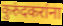
कुरुंदकरांना